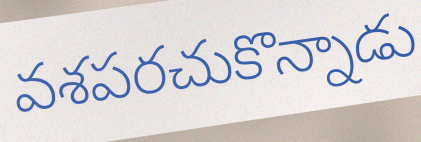
వశపరచుకొన్నాడు